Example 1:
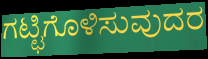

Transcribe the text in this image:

ಗಟ್ಟಿಗೊಳಿಸುವುದರ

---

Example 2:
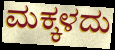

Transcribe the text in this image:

ಮಕ್ಕಳದು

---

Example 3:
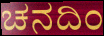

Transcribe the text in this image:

ಚನದಿಂ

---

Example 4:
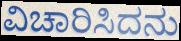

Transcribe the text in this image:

ವಿಚಾರಿಸಿದನು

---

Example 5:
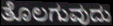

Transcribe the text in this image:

ತೊಲಗುವುದು